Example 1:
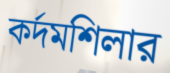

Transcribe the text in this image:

কর্দমশিলার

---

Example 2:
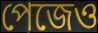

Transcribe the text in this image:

পেজেও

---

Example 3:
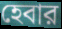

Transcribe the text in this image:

হেবার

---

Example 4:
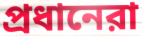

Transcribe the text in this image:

প্রধানেরা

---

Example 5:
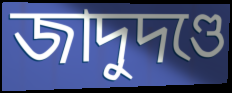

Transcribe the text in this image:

জাদুদণ্ডে